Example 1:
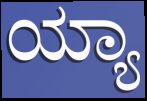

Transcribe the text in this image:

ಯ್ಯಾ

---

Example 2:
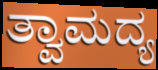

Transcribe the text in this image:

ತ್ವಾಮದ್ಯ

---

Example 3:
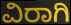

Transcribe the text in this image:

ವಿರಾಗಿ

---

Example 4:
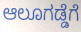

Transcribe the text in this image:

ಆಲೂಗಡ್ಡೆಗೆ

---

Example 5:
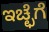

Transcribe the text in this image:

ಇಚ್ಛೆಗೆ